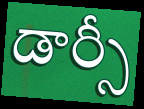
డార్సీ